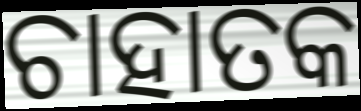
ଚାହାତକ